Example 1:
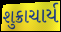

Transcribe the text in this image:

શુક્રાચાર્ય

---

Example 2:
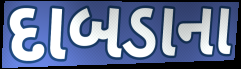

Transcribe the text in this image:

દાબડાના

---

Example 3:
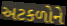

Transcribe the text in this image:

અટકળોને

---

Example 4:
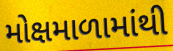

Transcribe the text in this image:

મોક્ષમાળામાંથી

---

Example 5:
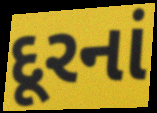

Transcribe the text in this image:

દૂરનાં